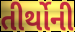
તીર્થોની